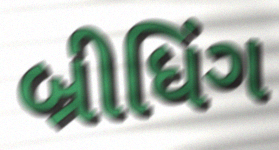
બ્રીધિંગ